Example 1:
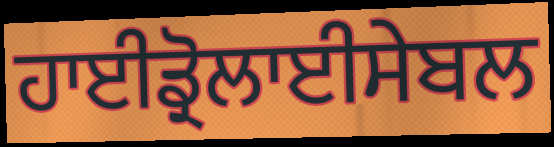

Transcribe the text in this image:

ਹਾਈਡ੍ਰੋਲਾਈਸੇਬਲ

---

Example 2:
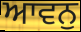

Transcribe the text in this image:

ਆਵਨੁ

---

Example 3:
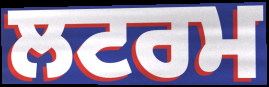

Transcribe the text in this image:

ਲਟਰਮ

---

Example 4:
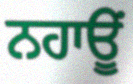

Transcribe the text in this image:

ਨਹਾਊਂ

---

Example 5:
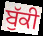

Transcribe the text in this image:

ਬੁੱਕੀ